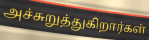
அச்சுறுத்துகிறார்கள்